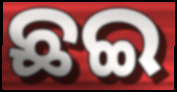
ଛଇ